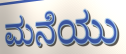
ಮನೆಯು